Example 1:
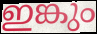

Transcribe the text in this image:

ഇങ്കും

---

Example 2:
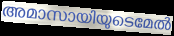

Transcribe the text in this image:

അമാസായിയുടെമേൽ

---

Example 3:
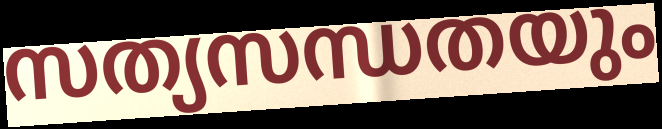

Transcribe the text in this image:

സത്യസന്ധതയും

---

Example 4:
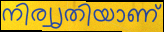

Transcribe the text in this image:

നിര്വൃതിയാണ്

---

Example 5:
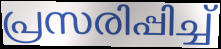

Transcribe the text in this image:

പ്രസരിപ്പിച്ച്